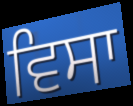
ਵਿਸਾ